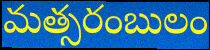
మత్సరంబులం